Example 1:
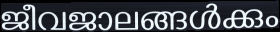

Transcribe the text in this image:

ജീവജാലങ്ങൾക്കും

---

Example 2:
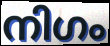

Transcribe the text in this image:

നിഗം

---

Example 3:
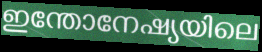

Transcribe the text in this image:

ഇന്തോനേഷ്യയിലെ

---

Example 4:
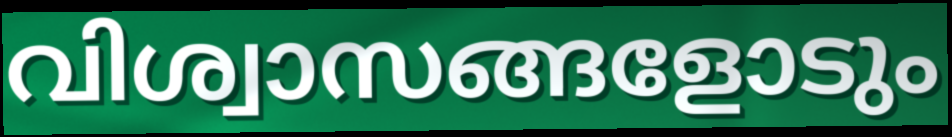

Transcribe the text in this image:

വിശ്വാസങ്ങളോടും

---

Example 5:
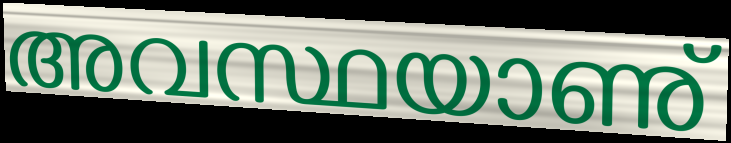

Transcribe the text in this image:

അവസ്ഥയാണു്